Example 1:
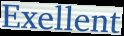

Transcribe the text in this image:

Exellent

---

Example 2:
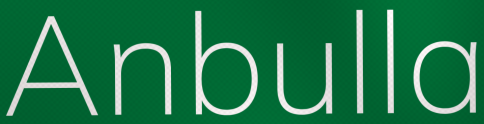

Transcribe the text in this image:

Anbulla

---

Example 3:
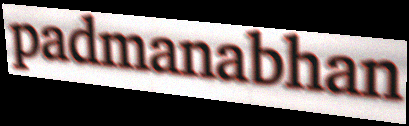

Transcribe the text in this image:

padmanabhan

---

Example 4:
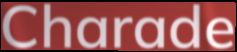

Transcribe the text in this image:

Charade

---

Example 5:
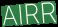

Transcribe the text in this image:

AIRR